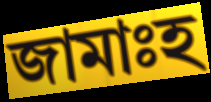
জামাঃহ